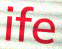
ife